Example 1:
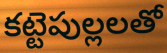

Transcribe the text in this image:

కట్టెపుల్లలతో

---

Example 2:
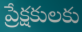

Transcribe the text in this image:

ప్రేక్షకులకు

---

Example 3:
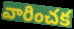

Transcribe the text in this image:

వారించక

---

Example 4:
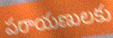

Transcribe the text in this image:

పరాయణులకు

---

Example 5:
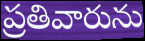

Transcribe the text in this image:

ప్రతివారును